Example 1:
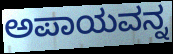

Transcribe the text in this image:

ಅಪಾಯವನ್ನ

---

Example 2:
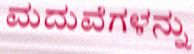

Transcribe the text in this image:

ಮದುವೆಗಳನ್ನು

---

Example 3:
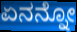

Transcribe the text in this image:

ಏನನ್ನೋ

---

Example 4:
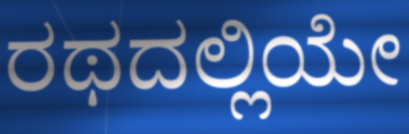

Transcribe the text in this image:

ರಥದಲ್ಲಿಯೇ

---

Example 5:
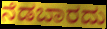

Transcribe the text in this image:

ನೆಡಬಾರದು